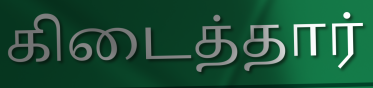
கிடைத்தார்